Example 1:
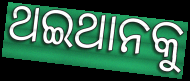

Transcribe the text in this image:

ଥଇଥାନକୁ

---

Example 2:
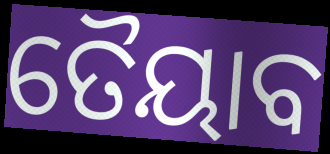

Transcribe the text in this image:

ତୈୟାବ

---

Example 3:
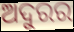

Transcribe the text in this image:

ଅଦୁରର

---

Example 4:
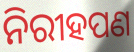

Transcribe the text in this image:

ନିରୀହପଣ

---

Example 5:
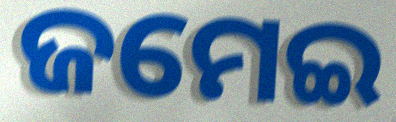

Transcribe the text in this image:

ଜମେଇ